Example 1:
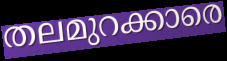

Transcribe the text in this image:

തലമുറക്കാരെ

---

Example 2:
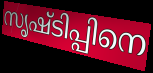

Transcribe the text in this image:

സൃഷ്ടിപ്പിനെ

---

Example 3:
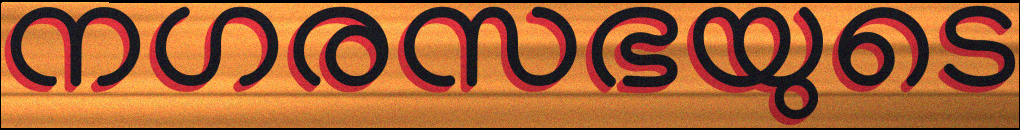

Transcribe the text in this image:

നഗരസഭയുടെ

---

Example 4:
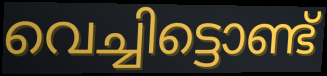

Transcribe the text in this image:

വെച്ചിട്ടൊണ്ട്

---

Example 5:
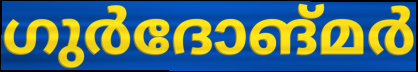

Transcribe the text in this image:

ഗുർദോങ്മർ